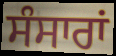
ਸੰਸਾਰਾਂ